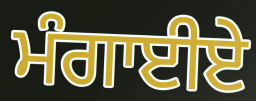
ਮੰਗਾਈਏ